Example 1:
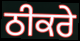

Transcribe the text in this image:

ਠੀਕਰੇ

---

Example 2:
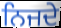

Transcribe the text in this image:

ਨਿਜਦੇ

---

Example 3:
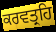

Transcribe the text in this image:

ਕਰਵਤ੍ਰਹਿ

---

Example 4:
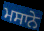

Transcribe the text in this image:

ਮਸਾਨੇ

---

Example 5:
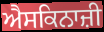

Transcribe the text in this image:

ਐਸਕਿਨਾਜ਼ੀ